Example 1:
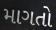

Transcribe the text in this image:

માગતો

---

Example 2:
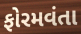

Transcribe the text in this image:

ફોરમવંતા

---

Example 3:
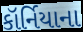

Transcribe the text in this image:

કૉર્નિયાના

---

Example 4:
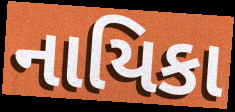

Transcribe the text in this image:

નાયિકા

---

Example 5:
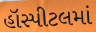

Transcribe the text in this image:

હૉસ્પીટલમાં